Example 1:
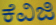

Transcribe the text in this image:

ಕೆವಿಜಿ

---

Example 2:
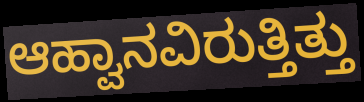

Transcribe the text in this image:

ಆಹ್ವಾನವಿರುತ್ತಿತ್ತು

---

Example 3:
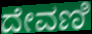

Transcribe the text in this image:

ದೇವಣಿ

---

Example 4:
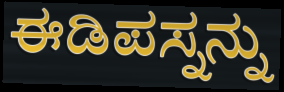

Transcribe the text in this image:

ಈಡಿಪಸ್ನನ್ನು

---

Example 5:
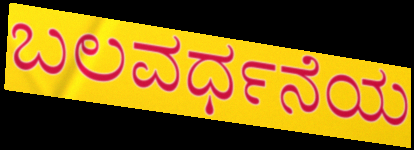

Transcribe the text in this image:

ಬಲವರ್ಧನೆಯ